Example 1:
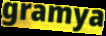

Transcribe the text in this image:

gramya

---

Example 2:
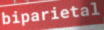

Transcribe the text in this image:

biparietal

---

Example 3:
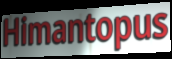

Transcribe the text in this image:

Himantopus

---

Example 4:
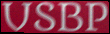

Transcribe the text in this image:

USBP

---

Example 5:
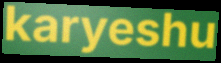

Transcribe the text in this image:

karyeshu